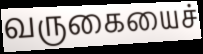
வருகையைச்